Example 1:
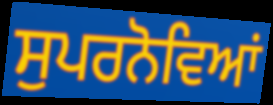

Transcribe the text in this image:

ਸੁਪਰਨੋਵਿਆਂ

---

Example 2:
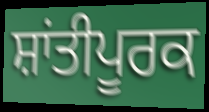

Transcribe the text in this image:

ਸ਼ਾਂਤੀਪੂਰਕ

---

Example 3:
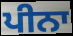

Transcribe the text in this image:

ਪੀਨਾ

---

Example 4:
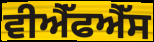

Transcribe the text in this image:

ਵੀਐੱਫਐੱਸ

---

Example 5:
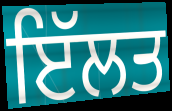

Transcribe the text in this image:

ਇੱਲਤ